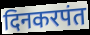
दिनकरपंत